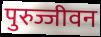
पुरुज्जीवन